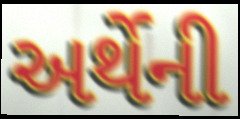
અર્થેની